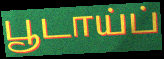
பூடாய்ப்